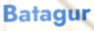
Batagur